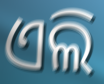
ଏଲି